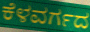
ಕೆಳವರ್ಗದ